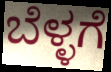
ಬೆಳ್ಳಗೆ